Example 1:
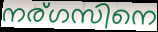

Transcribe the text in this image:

നര്ഗസിനെ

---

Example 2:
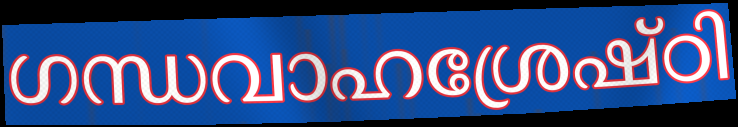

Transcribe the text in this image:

ഗന്ധവാഹശ്രേഷ്ഠി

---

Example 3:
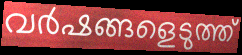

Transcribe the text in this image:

വർഷങ്ങളെടുത്ത്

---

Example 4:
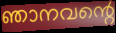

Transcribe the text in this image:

ഞാനവന്റെ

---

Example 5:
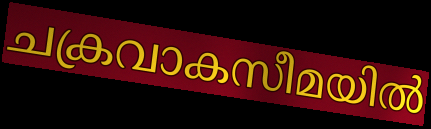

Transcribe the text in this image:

ചക്രവാകസീമയിൽ